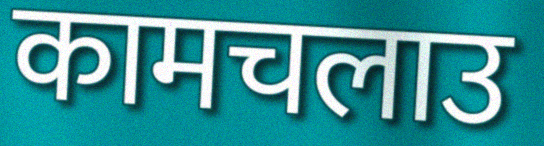
कामचलाउ